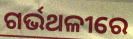
ଗର୍ଭଥଳୀରେ